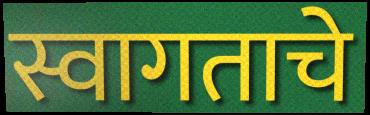
स्वागताचे